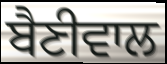
ਬੈਣੀਵਾਲ